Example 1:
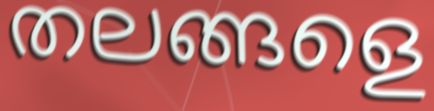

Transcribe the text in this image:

തലങ്ങളെ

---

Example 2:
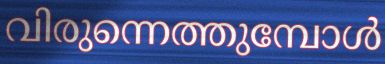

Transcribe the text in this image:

വിരുന്നെത്തുമ്പോൾ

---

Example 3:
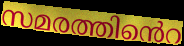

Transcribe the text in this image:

സമരത്തിൻെറ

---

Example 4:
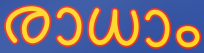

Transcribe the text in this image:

രാധാം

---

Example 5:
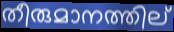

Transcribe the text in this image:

തീരുമാനത്തില്